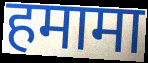
हमामा